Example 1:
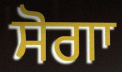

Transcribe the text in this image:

ਸੋਗਾ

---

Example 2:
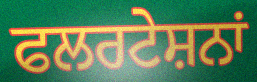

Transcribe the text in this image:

ਫਲਰਟੇਸ਼ਨਾਂ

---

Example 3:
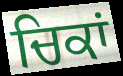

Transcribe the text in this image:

ਚਿਕਾਂ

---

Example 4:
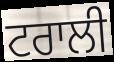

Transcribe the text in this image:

ਟਰਾਲੀ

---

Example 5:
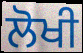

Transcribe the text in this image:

ਲੋਖੀ